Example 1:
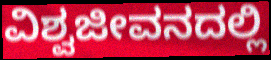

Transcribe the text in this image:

ವಿಶ್ವಜೀವನದಲ್ಲಿ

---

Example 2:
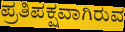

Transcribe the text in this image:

ಪ್ರತಿಪಕ್ಷವಾಗಿರುವ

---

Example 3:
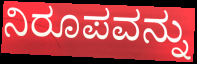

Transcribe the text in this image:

ನಿರೂಪವನ್ನು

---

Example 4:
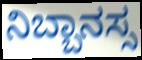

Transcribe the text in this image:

ನಿಬ್ಬಾನಸ್ಸ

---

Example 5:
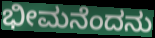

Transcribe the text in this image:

ಭೀಮನೆಂದನು